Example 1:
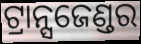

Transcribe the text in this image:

ଟ୍ରାନ୍ସଜେଣ୍ଡର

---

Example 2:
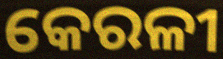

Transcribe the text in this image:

କେରଳୀ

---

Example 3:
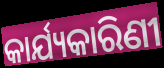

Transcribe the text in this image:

କାର୍ଯ୍ୟକାରିଣୀ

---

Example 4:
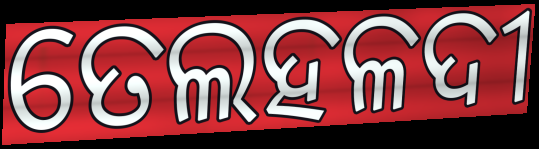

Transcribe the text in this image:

ତେଲହଳଦୀ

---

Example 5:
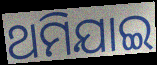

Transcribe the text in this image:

ଥମିଯାଇ